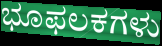
ಭೂಫಲಕಗಳು